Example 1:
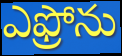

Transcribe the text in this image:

ఎఫ్రోను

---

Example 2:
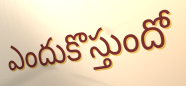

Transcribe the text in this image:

ఎందుకొస్తుందో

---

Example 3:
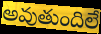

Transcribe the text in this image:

అవుతుందిలే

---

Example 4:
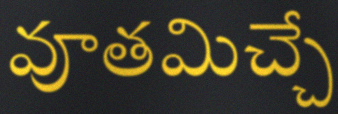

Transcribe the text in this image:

వూతమిచ్చే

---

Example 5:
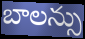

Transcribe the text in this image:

బాలన్సు